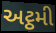
અટ્ઠમી